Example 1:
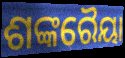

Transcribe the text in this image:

ଶଙ୍କରୈୟା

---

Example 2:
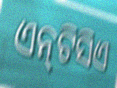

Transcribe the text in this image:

ଏନ୍‌ଟିସିଏ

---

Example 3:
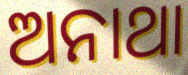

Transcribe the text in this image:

ଅନାଥା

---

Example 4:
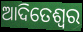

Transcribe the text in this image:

ଆଦିତେଶ୍ଵର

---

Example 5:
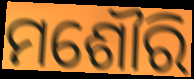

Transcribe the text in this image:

ମଶୌରି